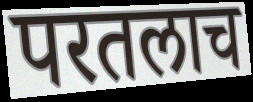
परतलाच